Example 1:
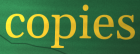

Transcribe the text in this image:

copies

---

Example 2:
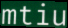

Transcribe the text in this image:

mtiu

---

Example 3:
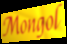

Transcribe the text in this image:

Mongol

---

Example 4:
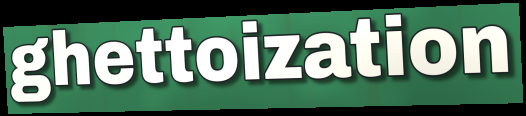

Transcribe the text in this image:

ghettoization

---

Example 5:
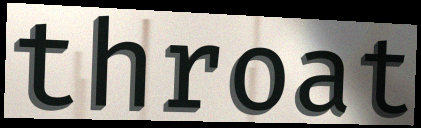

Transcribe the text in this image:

throat